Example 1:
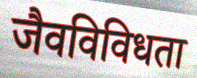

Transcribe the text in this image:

जैवविविधता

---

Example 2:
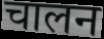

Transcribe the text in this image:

चालन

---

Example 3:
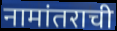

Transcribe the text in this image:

नामांतराची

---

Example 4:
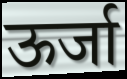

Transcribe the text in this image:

ऊर्जा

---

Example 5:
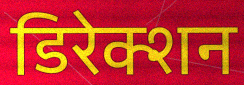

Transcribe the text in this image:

डिरेक्शन